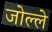
जोल्ले